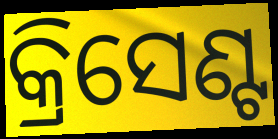
କ୍ରିସେଣ୍ଟ